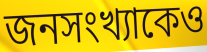
জনসংখ্যাকেও